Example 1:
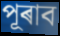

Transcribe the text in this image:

পূৰাব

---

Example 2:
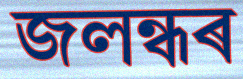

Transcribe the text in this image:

জলন্ধৰ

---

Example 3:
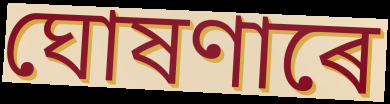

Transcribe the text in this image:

ঘোষণাৰে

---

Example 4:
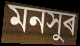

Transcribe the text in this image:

মনসুৰ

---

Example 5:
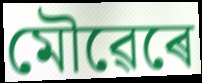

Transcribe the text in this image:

মৌৱেৰে